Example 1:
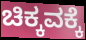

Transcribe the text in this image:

ಚಿಕ್ಕವಕ್ಕೆ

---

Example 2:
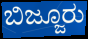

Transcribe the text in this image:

ಬಿಜ್ಜೂರು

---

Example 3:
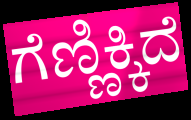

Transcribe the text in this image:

ಗೆಣ್ಣಿಕ್ಕಿದೆ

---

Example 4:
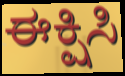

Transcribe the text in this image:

ಈಕ್ಷಿಸಿ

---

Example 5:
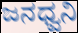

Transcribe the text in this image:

ಜನಧ್ವನಿ